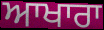
ਆਖਾਰਾ